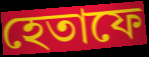
হেতাফে